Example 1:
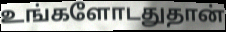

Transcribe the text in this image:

உங்களோடதுதான்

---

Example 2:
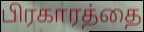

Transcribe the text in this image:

பிரகாரத்தை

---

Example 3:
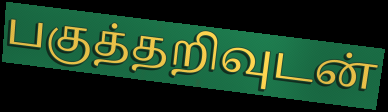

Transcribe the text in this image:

பகுத்தறிவுடன்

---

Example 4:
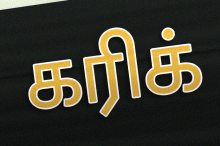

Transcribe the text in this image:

கரிக்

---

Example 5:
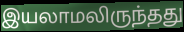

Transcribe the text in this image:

இயலாமலிருந்தது